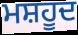
ਮਸ਼ਹੂਦ